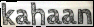
kahaan